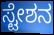
ಸ್ಟೇಶನ